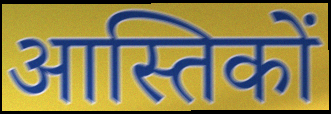
आस्तिकों